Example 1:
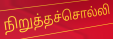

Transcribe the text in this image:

நிறுத்தச்சொல்லி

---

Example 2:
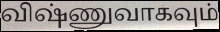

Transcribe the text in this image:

விஷ்ணுவாகவும்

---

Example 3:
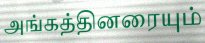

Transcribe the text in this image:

அங்கத்தினரையும்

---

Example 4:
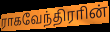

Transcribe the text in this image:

ராகவேந்திரரின்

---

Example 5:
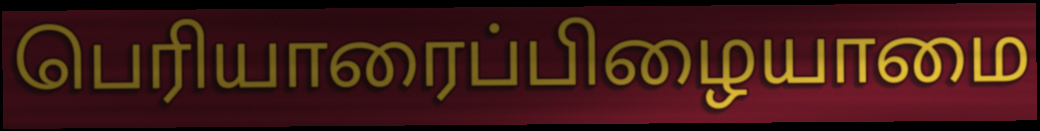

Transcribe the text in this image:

பெரியாரைப்பிழையாமை